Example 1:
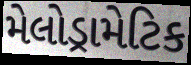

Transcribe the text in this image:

મેલોડ્રામેટિક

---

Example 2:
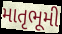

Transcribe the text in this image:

માતૃભૂમી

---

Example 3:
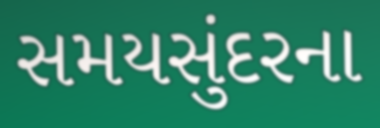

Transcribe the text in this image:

સમયસુંદરના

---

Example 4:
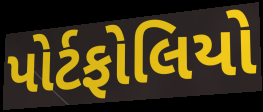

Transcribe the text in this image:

પોર્ટફોલિયો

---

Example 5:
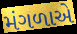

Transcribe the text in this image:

મંગળાએ